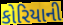
કોરિયાની